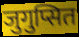
जुगुप्सित